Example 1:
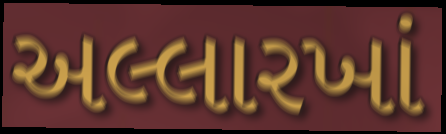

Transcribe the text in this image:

અલ્લારખાં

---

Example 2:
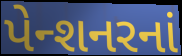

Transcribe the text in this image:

પેન્શનરનાં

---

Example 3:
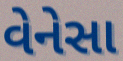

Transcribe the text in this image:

વેનેસા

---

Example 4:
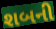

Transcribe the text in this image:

શબની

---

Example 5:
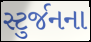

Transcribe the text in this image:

સ્ટુર્જનના